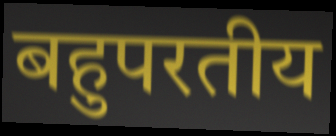
बहुपरतीय